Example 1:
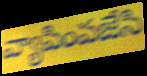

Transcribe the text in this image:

వ్యాపింపజేసి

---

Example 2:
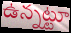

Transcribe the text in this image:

ఉన్నట్టూ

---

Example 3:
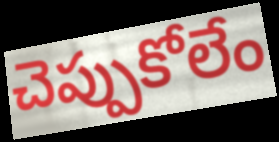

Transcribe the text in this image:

చెప్పుకోలేం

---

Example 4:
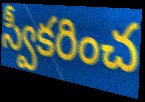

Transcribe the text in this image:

స్వీకరించ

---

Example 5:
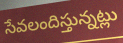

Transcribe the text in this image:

సేవలందిస్తున్నట్లు